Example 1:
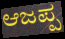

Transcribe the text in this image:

ಆಜಪ್ಪ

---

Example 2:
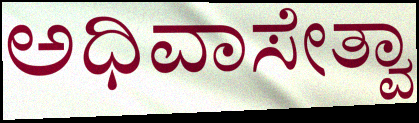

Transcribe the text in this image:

ಅಧಿವಾಸೇತ್ವಾ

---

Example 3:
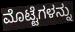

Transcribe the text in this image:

ಮೊಟ್ಟೆಗಳನ್ನು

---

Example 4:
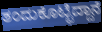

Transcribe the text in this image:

ತಂದುಕೊಟ್ಟಿದ್ದಾನೆ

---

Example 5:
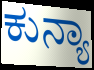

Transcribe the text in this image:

ಕುನ್ಯಾ